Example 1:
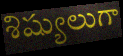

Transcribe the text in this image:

శిష్యులుగా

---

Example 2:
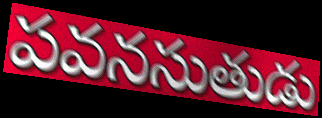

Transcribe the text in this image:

పవనసుతుడు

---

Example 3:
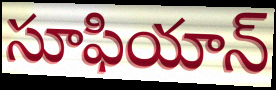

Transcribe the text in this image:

సూఫియాన్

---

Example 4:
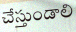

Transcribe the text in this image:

చేస్తుండాలి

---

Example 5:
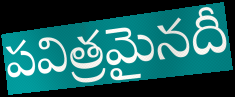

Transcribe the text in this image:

పవిత్రమైనదీ